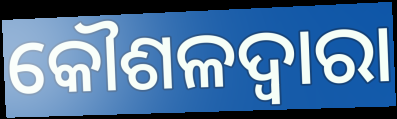
କୌଶଳଦ୍ୱାରା